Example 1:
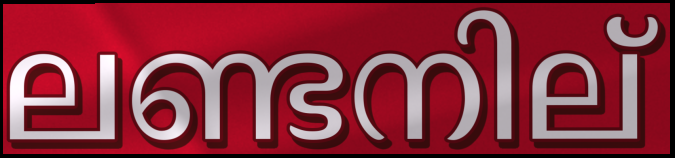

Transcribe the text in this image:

ലണ്ടനില്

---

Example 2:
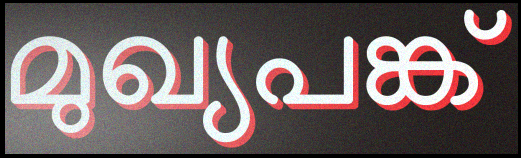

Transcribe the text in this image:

മുഖ്യപങ്ക്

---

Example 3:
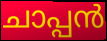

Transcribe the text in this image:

ചാപ്പൻ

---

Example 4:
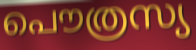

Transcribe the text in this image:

പൌത്രസ്യ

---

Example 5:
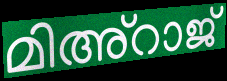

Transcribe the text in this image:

മിഅ്റാജ്